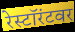
रेस्टॉरंटवर